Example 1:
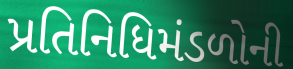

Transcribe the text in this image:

પ્રતિનિધિમંડળોની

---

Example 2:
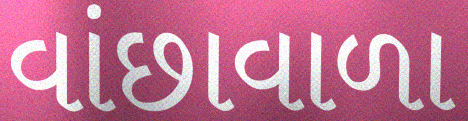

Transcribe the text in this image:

વાંછાવાળા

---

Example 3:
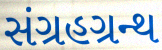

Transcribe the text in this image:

સંગ્રહગ્રન્થ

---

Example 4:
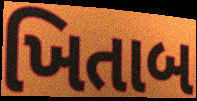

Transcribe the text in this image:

ખિતાબ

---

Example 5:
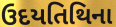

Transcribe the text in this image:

ઉદયતિથિના